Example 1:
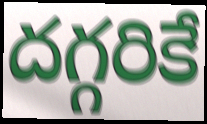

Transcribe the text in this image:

దగ్గరికే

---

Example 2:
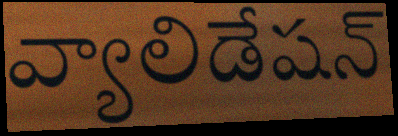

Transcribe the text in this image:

వ్యాలిడేషన్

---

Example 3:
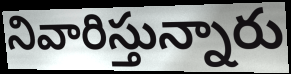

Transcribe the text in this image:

నివారిస్తున్నారు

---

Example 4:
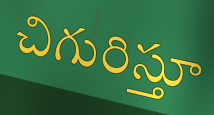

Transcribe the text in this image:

చిగురిస్తూ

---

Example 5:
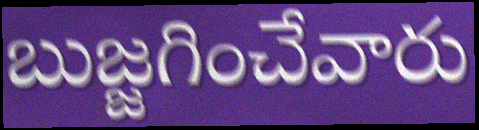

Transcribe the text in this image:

బుజ్జగించేవారు